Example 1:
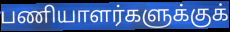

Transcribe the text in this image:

பணியாளர்களுக்குக்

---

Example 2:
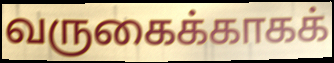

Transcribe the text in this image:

வருகைக்காகக்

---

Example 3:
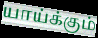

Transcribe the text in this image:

யாய்க்கும்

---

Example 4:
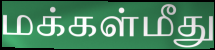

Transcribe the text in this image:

மக்கள்மீது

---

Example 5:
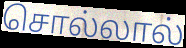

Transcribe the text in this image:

சொல்லால்